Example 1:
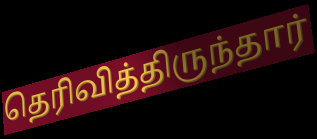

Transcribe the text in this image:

தெரிவித்திருந்தார்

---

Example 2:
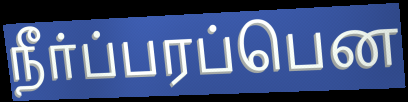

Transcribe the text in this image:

நீர்ப்பரப்பென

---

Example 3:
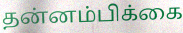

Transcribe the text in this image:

தன்னம்பிக்கை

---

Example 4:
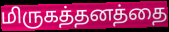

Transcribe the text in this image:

மிருகத்தனத்தை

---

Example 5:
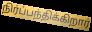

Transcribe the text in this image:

நிர்ப்பந்திக்கிறார்